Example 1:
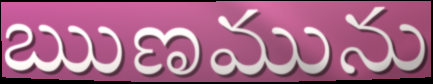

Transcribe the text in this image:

ఋణమును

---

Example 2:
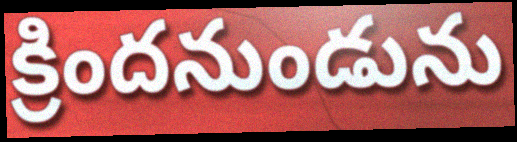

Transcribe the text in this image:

క్రిందనుండును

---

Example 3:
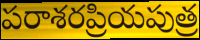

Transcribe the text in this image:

పరాశరప్రియపుత్ర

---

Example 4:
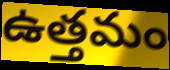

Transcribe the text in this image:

ఉత్తమం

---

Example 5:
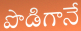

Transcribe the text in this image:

పొడిగానే